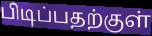
பிடிப்பதற்குள்